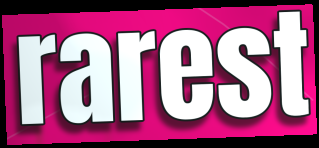
rarest